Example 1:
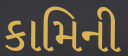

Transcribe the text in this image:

કામિની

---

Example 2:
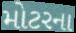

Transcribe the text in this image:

મોટરના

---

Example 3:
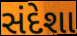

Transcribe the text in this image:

સંદેશા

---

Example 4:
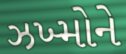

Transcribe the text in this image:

ઝખ્મોને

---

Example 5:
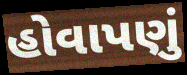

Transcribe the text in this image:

હોવાપણું